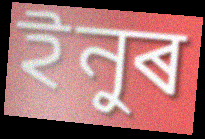
ইনুৰ